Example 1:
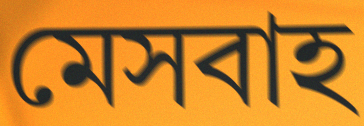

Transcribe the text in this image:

মেসবাহ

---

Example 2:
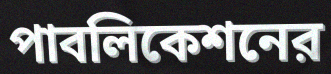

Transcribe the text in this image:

পাবলিকেশনের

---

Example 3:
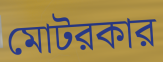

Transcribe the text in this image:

মোটরকার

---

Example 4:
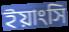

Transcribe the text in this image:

ইয়াংসি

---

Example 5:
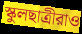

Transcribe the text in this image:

স্কুলছাত্রীরাও